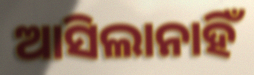
ଆସିଲାନାହିଁ